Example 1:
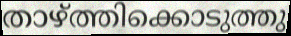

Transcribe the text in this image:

താഴ്ത്തിക്കൊടുത്തു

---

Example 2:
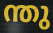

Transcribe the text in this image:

ന്തു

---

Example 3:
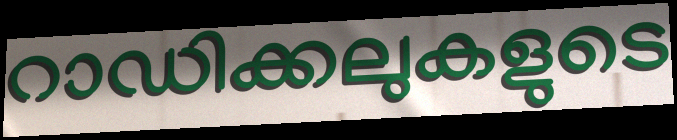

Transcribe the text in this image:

റാഡിക്കലുകളുടെ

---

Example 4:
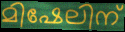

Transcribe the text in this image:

മിഷേലിന്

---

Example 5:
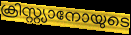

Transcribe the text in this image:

ക്രിസ്റ്റ്യാനോയുടെ